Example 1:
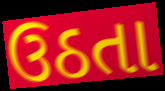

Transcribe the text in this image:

ઉઠતા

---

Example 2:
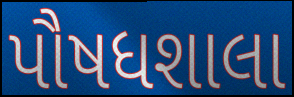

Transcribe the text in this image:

પૌષધશાલા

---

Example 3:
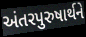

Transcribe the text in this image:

અંતરપુરુષાર્થને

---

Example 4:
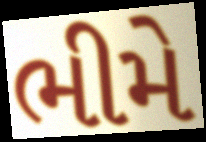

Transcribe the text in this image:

ભીમે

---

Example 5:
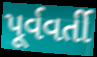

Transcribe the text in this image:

પૂર્વવર્તી